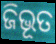
ଜିଭୂତ